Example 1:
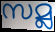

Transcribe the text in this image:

സമ്ല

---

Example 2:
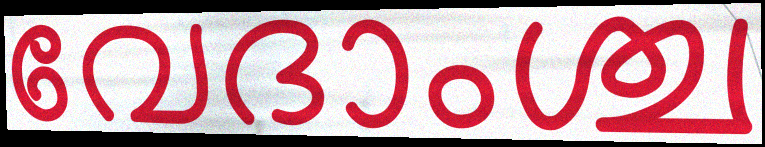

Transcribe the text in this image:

വേദാംശ്ച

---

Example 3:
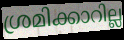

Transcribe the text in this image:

ശ്രമിക്കാറില്ല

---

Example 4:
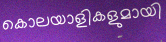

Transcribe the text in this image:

കൊലയാളികളുമായി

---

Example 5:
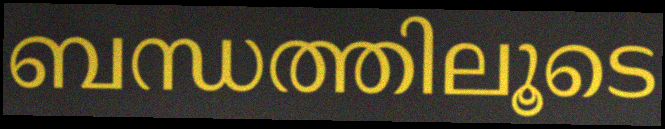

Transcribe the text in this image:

ബന്ധത്തിലൂടെ